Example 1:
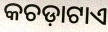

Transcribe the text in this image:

କଚଡ଼ାଟାଏ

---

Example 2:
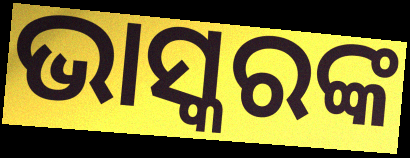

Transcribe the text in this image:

ଭାସ୍କରଙ୍କ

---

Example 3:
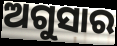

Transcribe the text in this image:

ଅଗୁସାର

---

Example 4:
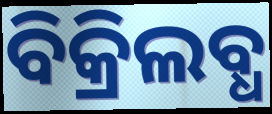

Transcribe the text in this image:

ବିକ୍ରିଲବ୍ଧ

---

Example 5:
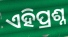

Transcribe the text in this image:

ଏହିପ୍ରଶ୍ନ